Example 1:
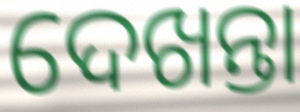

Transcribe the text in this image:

ଦେଖନ୍ତା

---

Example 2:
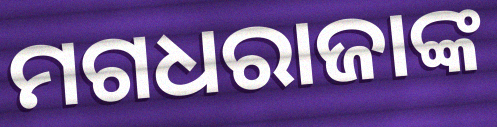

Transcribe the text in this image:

ମଗଧରାଜାଙ୍କ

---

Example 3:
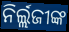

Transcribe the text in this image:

ନିର୍ଲ୍ଲଜୀଙ୍କ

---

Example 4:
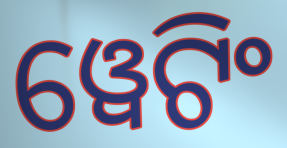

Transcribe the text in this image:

ୱେଟିଂ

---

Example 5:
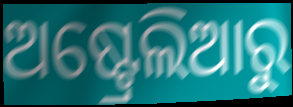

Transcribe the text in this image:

ଅଷ୍ଟ୍ରେଲିଆରୁ